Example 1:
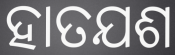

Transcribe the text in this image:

ହାତଯଶ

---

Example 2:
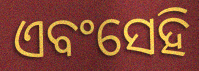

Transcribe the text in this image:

ଏବଂସେହି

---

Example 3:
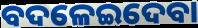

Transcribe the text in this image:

ବଦଳେଇଦେବା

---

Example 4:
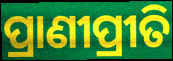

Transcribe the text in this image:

ପ୍ରାଣୀପ୍ରୀତି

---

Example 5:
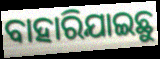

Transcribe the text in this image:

ବାହାରିଯାଇଛୁ